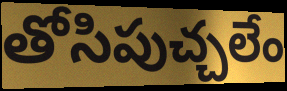
తోసిపుచ్చలేం